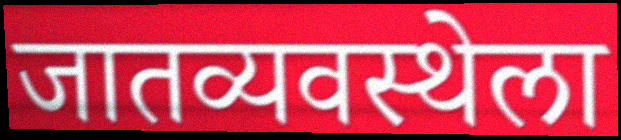
जातव्यवस्थेला